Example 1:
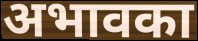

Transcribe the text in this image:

अभावका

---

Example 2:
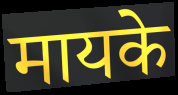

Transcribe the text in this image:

मायके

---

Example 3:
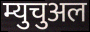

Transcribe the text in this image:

म्युचुअल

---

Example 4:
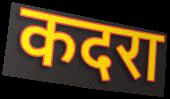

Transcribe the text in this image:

कदरा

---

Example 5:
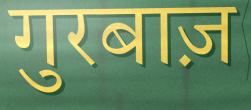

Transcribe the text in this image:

गुरबाज़